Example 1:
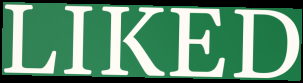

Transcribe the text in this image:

LIKED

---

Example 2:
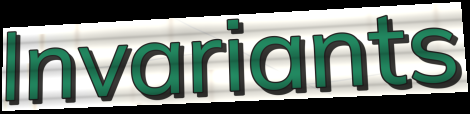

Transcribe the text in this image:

Invariants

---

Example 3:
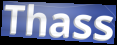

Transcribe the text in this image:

Thass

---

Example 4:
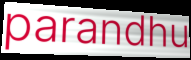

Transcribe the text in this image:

parandhu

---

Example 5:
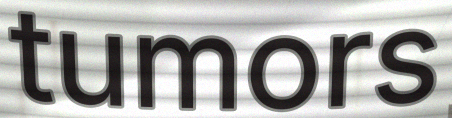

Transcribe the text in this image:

tumors